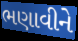
ભણાવીને